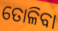
ତୋଳିବା